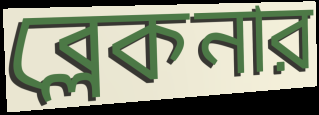
ব্লেকনার